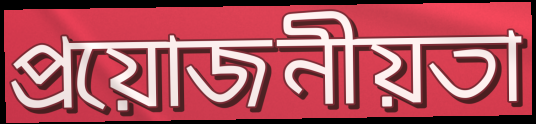
প্ৰয়োজনীয়তা